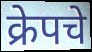
क्रेपचे